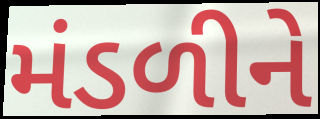
મંડળીને